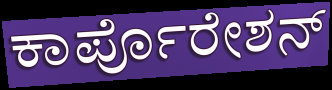
ಕಾರ್ಪೊರೇಶನ್